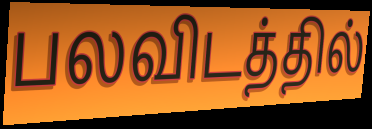
பலவிடத்தில்